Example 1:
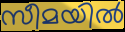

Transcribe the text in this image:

സീമയിൽ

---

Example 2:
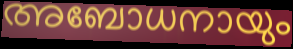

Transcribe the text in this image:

അബോധനായും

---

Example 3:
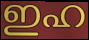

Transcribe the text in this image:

ഇഹ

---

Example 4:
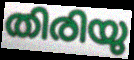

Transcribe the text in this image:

തിരിയു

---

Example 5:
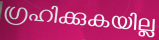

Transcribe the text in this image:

ഗ്രഹിക്കുകയില്ല